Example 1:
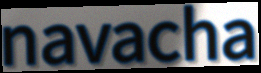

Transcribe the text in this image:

navacha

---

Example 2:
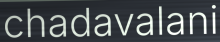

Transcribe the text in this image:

chadavalani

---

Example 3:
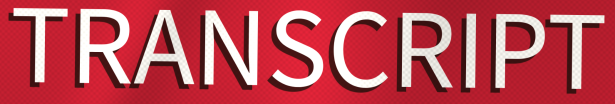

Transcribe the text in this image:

TRANSCRIPT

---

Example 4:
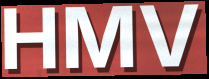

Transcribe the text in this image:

HMV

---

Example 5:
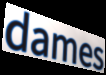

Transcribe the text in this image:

dames